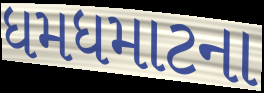
ધમધમાટના